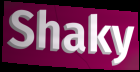
Shaky